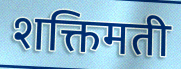
शक्तिमती